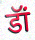
डॉं